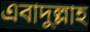
এবাদুল্লাহ